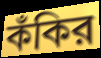
কঁকির